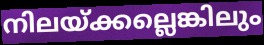
നിലയ്ക്കല്ലെങ്കിലും